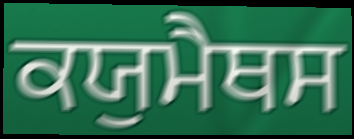
ਕਯੁਮੈਥਸ